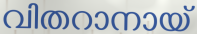
വിതറാനായ്